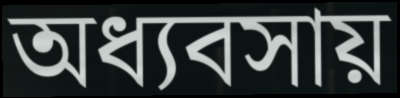
অধ্যবসায়